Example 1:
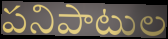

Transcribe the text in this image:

పనిపాటుల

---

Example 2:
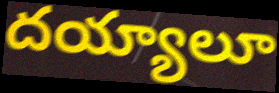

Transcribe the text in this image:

దయ్యాలూ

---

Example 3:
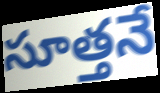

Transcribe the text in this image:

సూత్తనే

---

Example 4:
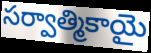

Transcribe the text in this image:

సర్వాత్మికాయై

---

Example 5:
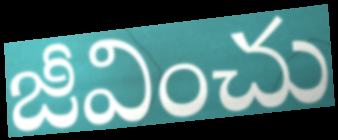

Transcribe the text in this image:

జీవించు